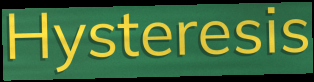
Hysteresis